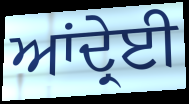
ਆਂਦ੍ਰੇਈ